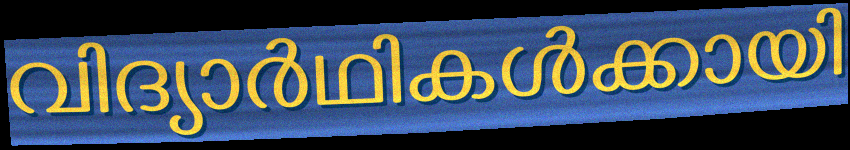
വിദ്യാർഥികൾക്കായി